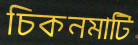
চিকনমাটি